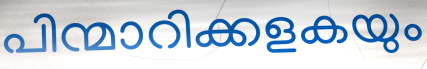
പിന്മാറിക്കളകയും